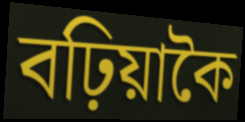
বঢ়িয়াকৈ